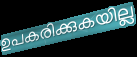
ഉപകരിക്കുകയില്ല